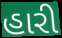
હારી